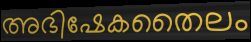
അഭിഷേകതൈലം